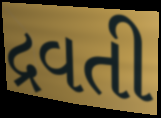
દ્રવતી